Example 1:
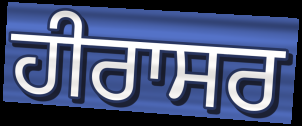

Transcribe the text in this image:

ਹੀਰਾਸਰ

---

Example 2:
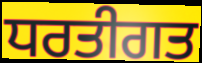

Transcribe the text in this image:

ਧਰਤੀਗਤ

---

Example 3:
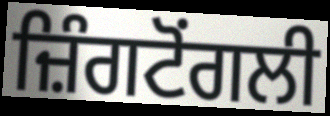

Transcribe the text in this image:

ਜ਼ਿੰਗਟੋਂਗਲੀ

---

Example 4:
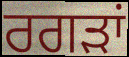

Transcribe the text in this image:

ਰਗੜਾਂ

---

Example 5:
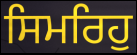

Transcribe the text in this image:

ਸਿਮਰਿਹੁ